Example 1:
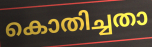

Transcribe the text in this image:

കൊതിച്ചതാ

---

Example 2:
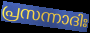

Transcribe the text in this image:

പ്രസന്നാദിഃ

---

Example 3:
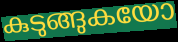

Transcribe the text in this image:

കുടുങ്ങുകയോ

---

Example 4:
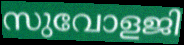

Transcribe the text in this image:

സുവോളജി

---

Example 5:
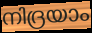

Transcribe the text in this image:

നിദ്രയാം